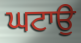
ਘਟਾਉ